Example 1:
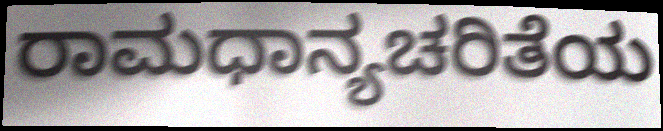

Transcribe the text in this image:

ರಾಮಧಾನ್ಯಚರಿತೆಯ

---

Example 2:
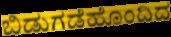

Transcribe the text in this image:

ಬಿಡುಗಡೆಹೊಂದಿದ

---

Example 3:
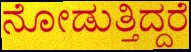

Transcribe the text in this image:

ನೋಡುತ್ತಿದ್ದರೆ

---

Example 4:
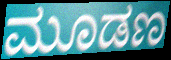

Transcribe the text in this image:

ಮೂಡಣ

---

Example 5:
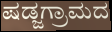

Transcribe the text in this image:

ಷಡ್ಜಗ್ರಾಮದ